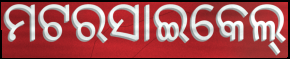
ମଟରସାଇକେଲ୍